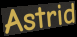
Astrid